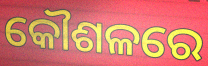
କୌଶଳରେ